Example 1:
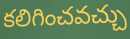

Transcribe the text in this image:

కలిగించవచ్చు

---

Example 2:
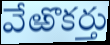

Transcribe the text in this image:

వేఱొకర్తు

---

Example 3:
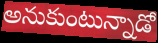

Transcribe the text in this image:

అనుకుంటున్నాడో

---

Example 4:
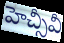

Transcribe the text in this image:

హెచ్సీవీ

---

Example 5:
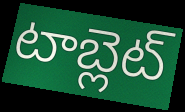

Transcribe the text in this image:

టాబ్లెట్